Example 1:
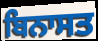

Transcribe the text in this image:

ਬਿਨਾਸਤ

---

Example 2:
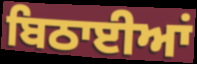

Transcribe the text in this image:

ਬਿਠਾਈਆਂ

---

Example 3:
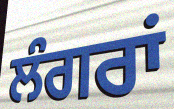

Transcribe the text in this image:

ਲੰਗਰਾਂ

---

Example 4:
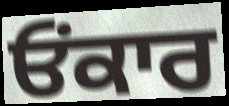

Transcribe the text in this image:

ਓਂਕਾਰ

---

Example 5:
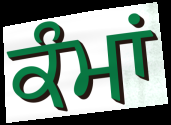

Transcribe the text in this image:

ਕੰਮਾਂ